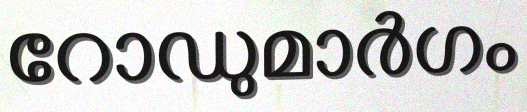
റോഡുമാർഗം